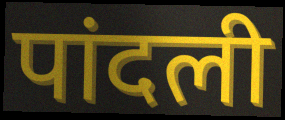
पांदली